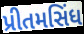
પ્રીતમસિંધ